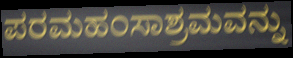
ಪರಮಹಂಸಾಶ್ರಮವನ್ನು